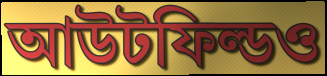
আউটফিল্ডও